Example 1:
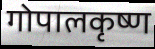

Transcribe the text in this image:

गोपालकृष्‍ण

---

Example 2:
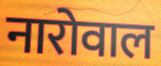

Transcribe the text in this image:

नारोवाल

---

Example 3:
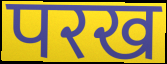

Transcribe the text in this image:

परख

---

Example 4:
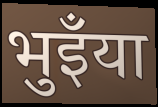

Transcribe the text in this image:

भुइँया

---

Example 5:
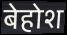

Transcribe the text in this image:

बेहोश